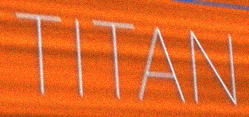
TITAN